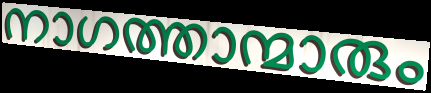
നാഗത്താന്മാരും